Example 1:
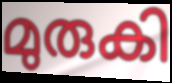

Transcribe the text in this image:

മുരുകി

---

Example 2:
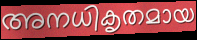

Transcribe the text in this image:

അനധികൃതമായ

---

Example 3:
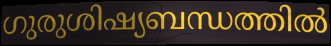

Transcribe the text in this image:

ഗുരുശിഷ്യബന്ധത്തിൽ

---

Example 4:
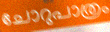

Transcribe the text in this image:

ചോറുപാത്രം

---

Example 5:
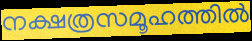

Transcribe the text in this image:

നക്ഷത്രസമൂഹത്തിൽ